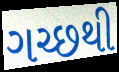
ગચ્છથી